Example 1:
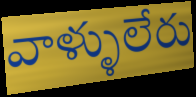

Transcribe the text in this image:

వాళ్ళులేరు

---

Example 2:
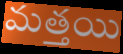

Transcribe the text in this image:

మత్తయి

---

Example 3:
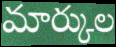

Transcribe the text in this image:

మార్కుల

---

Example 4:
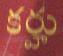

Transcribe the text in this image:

కర్హు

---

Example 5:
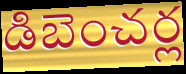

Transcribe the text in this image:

డిబెంచర్ల